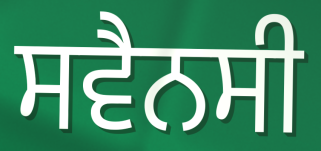
ਸਵੈਨਸੀ